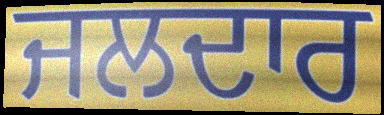
ਜਲਦਾਰ